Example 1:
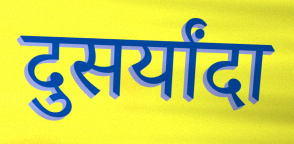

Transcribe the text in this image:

दुसर्यांदा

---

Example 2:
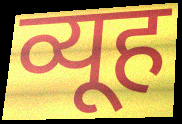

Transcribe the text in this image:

व्यूह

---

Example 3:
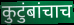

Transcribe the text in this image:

कुटुंबांचाच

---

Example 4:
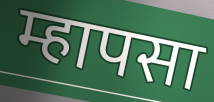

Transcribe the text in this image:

म्हापसा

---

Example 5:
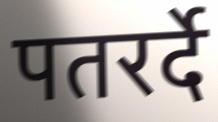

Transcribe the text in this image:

पतरर्दे